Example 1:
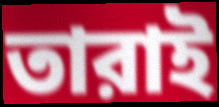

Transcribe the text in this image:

তারাই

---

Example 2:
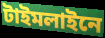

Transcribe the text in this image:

টাইমলাইনে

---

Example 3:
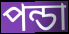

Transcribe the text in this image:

পন্ডা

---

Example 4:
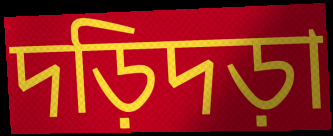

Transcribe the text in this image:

দড়িদড়া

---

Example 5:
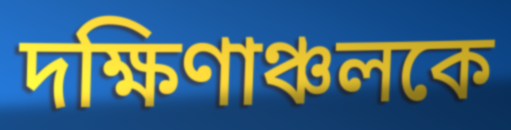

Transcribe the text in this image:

দক্ষিণাঞ্চলকে